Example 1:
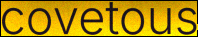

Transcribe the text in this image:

covetous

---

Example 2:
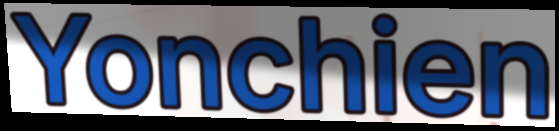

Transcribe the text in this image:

Yonchien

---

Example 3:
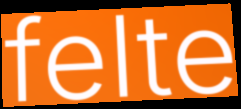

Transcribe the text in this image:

felte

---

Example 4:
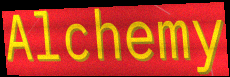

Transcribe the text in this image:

Alchemy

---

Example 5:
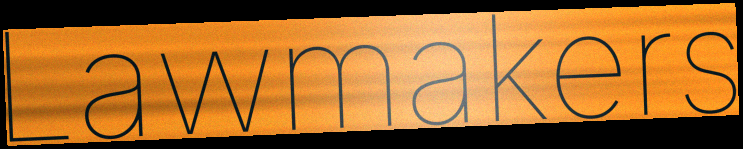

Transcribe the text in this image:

Lawmakers